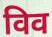
विव